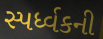
સ્પર્ધ્વકની